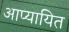
आप्यायित